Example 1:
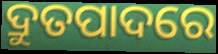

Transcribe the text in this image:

ଦ୍ରୁତପାଦରେ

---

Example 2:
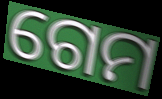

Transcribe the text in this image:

ଗେମ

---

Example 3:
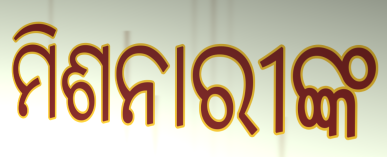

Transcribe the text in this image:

ମିଶନାରୀଙ୍କ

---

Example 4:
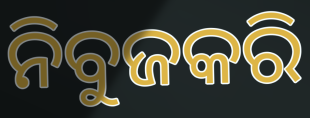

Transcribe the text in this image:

ନିବୁଜକରି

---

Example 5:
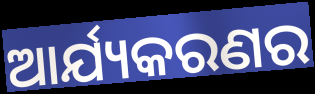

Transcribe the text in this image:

ଆର୍ଯ୍ୟକରଣର